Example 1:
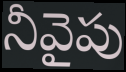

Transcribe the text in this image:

నీవైపు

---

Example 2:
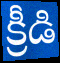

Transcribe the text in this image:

క్రీడి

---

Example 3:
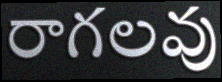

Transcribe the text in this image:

రాగలవు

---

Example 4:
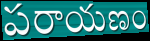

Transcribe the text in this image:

పరాయణం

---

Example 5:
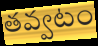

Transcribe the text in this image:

తవ్వటం